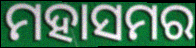
ମହାସମର